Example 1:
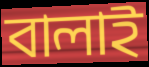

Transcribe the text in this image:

বালাই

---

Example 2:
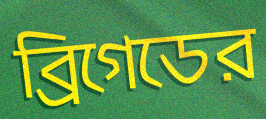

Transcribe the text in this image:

ব্রিগেডের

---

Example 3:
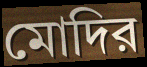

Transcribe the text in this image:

মোদির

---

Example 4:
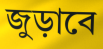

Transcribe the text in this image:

জুড়াবে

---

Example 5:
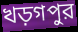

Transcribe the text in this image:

খড়গপুর